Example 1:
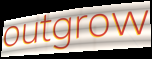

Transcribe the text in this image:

outgrow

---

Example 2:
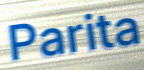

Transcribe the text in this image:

Parita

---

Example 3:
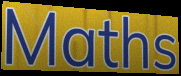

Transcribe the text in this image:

Maths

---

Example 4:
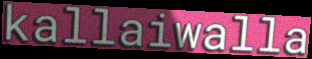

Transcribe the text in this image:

kallaiwalla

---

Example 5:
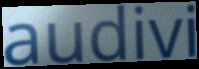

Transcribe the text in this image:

audivi